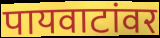
पायवाटांवर